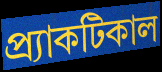
প্র্যাকটিকাল